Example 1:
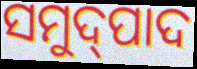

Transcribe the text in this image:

ସମୁଦ୍‌ପାଦ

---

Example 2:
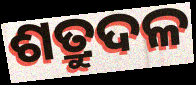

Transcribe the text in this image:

ଶତ୍ରୁଦଳ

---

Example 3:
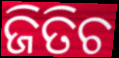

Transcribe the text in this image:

ଜିତିଚ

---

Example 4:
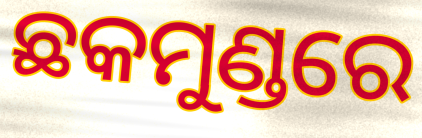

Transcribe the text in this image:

ଛକମୁଣ୍ଡରେ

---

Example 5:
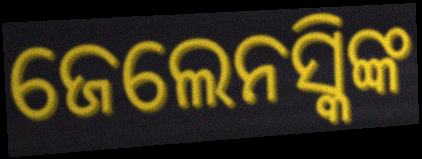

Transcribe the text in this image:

ଜେଲେନସ୍କିଙ୍କ